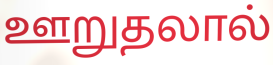
ஊறுதலால்